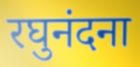
रघुनंदना